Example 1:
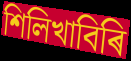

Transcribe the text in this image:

শিলিখাবিৰি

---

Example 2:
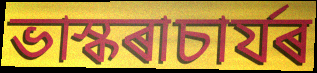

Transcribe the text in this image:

ভাস্কৰাচাৰ্যৰ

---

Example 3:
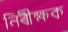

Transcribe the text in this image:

নিৰীক্ষক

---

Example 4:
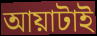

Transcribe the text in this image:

আয়াটাই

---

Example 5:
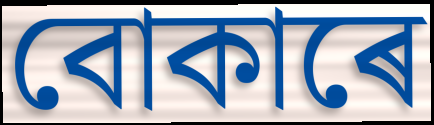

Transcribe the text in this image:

বোকাৰে